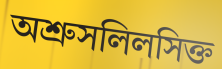
অশ্রুসলিলসিক্ত